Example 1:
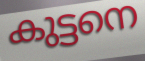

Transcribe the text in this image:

കുട്ടനെ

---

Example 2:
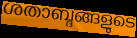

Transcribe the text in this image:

ശതാബ്ദങ്ങളുടെ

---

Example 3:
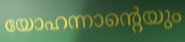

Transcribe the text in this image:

യോഹന്നാന്റെയും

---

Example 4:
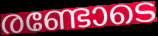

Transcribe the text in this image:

രണ്ടോടെ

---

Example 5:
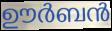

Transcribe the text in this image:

ഊർബൻ